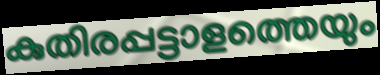
കുതിരപ്പട്ടാളത്തെയും